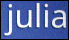
julia